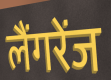
लैंगरेंज